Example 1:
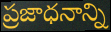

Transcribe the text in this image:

ప్రజాధనాన్ని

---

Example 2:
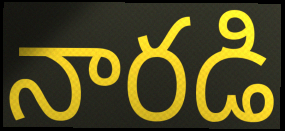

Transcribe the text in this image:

నారడి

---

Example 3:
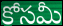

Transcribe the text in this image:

కోసమీ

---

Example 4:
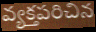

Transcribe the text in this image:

వ్యక్తపరిచిన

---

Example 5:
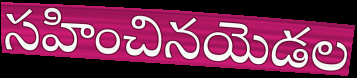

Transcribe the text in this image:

సహించినయెడల